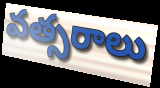
వత్సరాలు